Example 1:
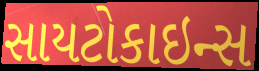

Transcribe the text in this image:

સાયટોકાઇન્સ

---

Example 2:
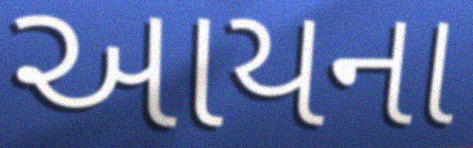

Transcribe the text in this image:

આયના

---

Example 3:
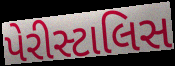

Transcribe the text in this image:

પેરીસ્ટાલિસ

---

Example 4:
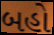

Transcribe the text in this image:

બહો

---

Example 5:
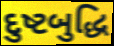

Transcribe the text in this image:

દુષ્ટબુદ્ધિ